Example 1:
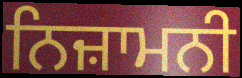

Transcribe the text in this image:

ਨਿਜ਼ਾਮਨੀ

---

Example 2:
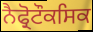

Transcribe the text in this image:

ਨੈਫ੍ਰੋਟੌਕਸਿਕ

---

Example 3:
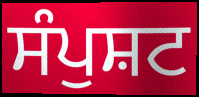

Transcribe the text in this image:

ਸੰਪੁਸ਼ਟ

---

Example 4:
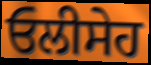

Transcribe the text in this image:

ਓਲੀਸੇਹ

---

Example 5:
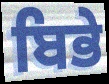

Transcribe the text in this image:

ਬਿਭੇ